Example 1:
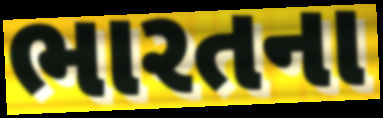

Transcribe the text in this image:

ભારતના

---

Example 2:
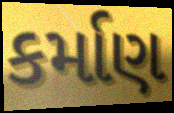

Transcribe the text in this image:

કર્માણ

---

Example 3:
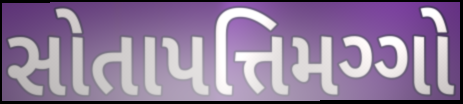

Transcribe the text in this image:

સોતાપત્તિમગ્ગો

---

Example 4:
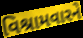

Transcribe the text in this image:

વિશ્રામવારને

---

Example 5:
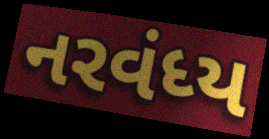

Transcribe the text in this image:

નરવંધ્ય